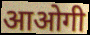
आओगी